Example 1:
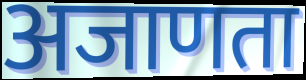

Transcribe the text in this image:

अजाणता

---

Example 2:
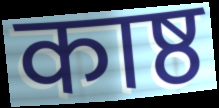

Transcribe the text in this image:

काष्ठ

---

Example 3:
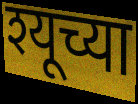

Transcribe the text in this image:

श्यूच्या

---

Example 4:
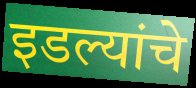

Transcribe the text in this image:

इडल्यांचे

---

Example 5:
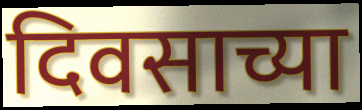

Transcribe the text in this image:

दिवसाच्या